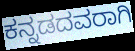
ಕನ್ನಡದವರಾಗಿ